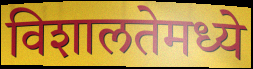
विशालतेमध्ये